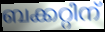
ബക്കറ്റിന്